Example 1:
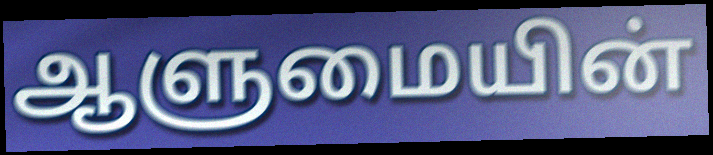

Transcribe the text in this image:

ஆளுமையின்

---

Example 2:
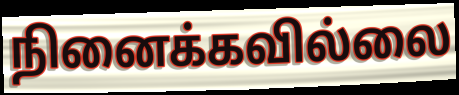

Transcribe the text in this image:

நினைக்கவில்லை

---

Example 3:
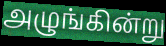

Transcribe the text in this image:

அழுங்கின்று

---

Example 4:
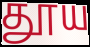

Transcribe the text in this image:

தூய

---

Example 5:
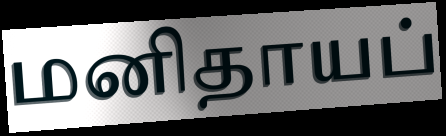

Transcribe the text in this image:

மனிதாயப்